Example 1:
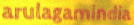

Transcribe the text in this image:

arulagamindia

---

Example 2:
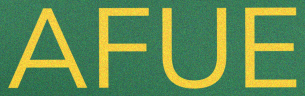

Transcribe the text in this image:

AFUE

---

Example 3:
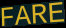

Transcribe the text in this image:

FARE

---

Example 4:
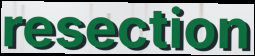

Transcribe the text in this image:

resection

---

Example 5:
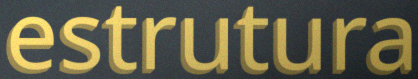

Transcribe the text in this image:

estrutura